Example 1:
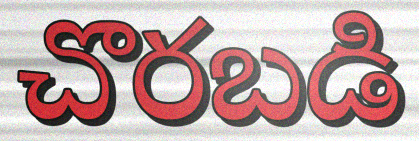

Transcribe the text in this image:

చొరబడి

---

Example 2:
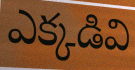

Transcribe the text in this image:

ఎక్కడివి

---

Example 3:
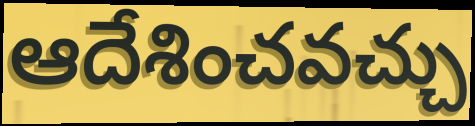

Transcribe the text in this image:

ఆదేశించవచ్చు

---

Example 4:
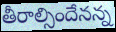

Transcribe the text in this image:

తీరాల్సిందేనన్న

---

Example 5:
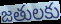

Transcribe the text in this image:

జతులకు